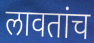
लावतांच